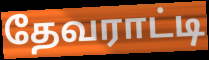
தேவராட்டி